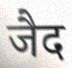
जैद